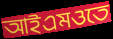
আইএমওতে